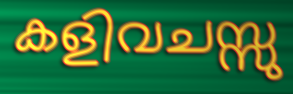
കളിവചസ്സു